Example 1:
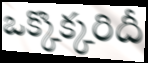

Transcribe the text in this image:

ఒక్కొక్కరిదీ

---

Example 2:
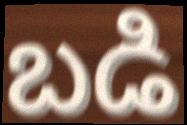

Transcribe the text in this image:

బడి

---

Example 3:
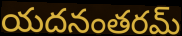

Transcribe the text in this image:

యదనంతరమ్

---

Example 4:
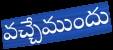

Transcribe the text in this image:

వచ్చేముందు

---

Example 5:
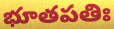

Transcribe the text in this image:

భూతపతిః